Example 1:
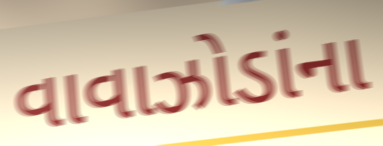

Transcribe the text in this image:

વાવાઝોડાંના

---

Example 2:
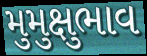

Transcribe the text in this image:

મુમુક્ષુભાવ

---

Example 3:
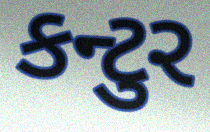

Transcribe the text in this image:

કન્ટુર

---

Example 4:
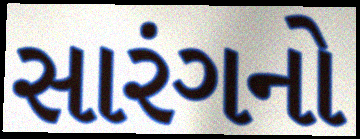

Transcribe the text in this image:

સારંગનો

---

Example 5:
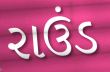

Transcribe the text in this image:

રાઉંડ